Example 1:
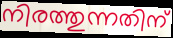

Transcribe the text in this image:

നിരത്തുന്നതിന്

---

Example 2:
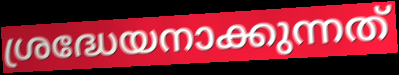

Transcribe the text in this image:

ശ്രദ്ധേയനാക്കുന്നത്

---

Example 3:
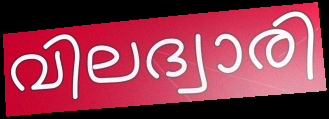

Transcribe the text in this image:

വിലദ്വാരി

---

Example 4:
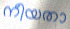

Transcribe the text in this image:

നീയതാ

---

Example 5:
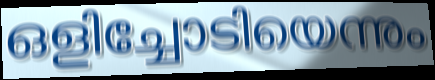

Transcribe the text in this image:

ഒളിച്ചോടിയെന്നും